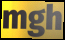
mgh